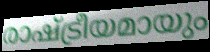
രാഷ്ട്രീയമായും